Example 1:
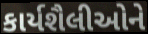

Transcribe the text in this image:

કાર્યશૈલીઓને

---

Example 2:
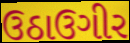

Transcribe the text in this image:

ઉઠાઉગીર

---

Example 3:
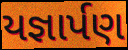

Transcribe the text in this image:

યજ્ઞાર્પણ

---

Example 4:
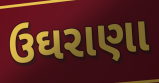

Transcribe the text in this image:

ઉઘરાણા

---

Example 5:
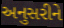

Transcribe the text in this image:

અનુસરીને